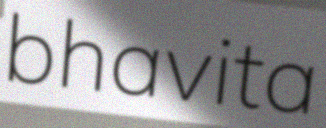
bhavita